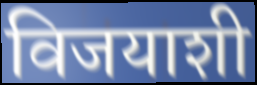
विजयाशी